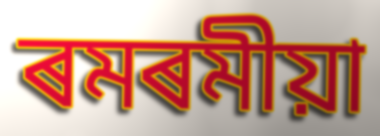
ৰমৰমীয়া